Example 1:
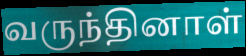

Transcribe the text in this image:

வருந்தினாள்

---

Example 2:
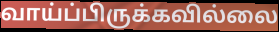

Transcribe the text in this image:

வாய்ப்பிருக்கவில்லை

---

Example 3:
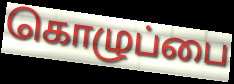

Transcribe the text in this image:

கொழுப்பை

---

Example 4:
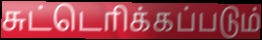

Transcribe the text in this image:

சுட்டெரிக்கப்படும்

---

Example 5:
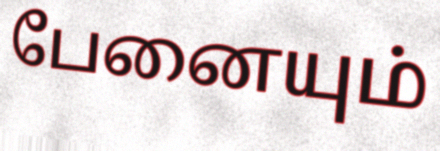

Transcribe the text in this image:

பேனையும்